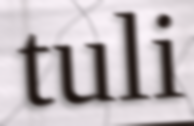
tuli